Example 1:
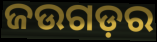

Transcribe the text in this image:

ଜଉଗଡ଼ର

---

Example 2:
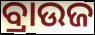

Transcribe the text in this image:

ବ୍ରାଉଜ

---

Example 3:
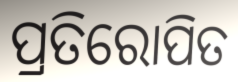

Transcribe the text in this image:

ପ୍ରତିରୋପିତ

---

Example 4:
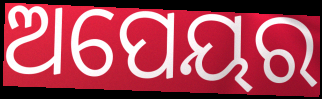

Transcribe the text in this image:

ଅପେୟର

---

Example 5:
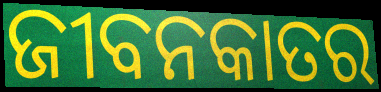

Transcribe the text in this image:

ଜୀବନକାତର